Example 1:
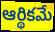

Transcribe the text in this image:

ఆర్థికమే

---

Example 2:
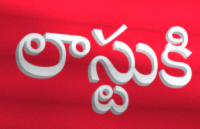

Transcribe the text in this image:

లాస్టుకి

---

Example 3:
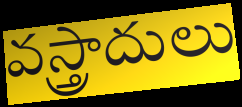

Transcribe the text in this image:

వస్త్రాదులు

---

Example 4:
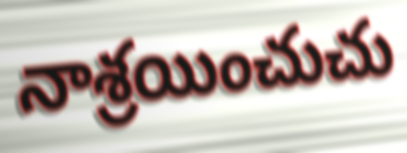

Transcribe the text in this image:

నాశ్రయించుచు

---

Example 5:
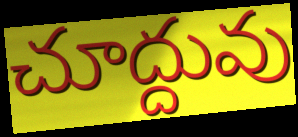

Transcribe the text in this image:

చూద్దువు